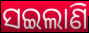
ସଇଲାଣି